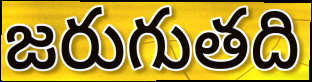
జరుగుతది